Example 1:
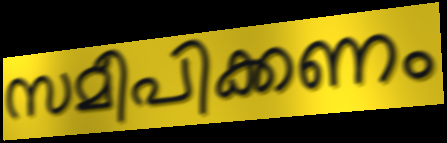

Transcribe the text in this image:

സമീപിക്കണം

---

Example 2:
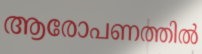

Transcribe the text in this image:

ആരോപണത്തിൽ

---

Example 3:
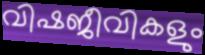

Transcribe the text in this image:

വിഷജീവികളും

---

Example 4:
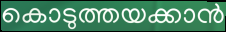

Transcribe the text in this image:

കൊടുത്തയക്കാൻ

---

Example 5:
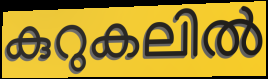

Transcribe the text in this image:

കുറുകലിൽ